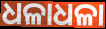
ଧଳାଧଳା